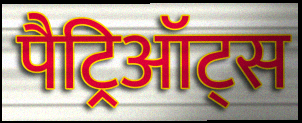
पैट्रिऑट्स